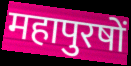
महापुरषों